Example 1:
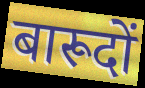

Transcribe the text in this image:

बारूदों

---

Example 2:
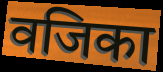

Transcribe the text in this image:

वजिका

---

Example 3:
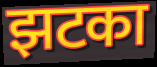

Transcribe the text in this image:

झटका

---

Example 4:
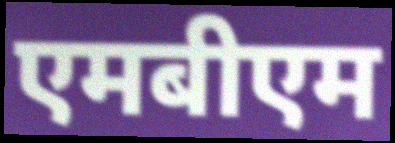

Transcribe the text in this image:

एमबीएम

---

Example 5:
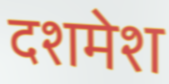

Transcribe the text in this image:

दशमेश